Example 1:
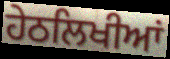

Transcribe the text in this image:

ਹੇਠਲਿਖੀਆਂ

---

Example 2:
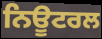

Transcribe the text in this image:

ਨਿਊਟਰਲ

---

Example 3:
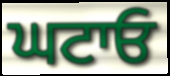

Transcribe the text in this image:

ਘਟਾਓ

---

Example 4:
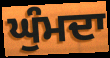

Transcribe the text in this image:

ਘੁੰਮਦਾ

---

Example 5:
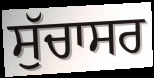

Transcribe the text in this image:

ਸੁੱਚਾਸਰ